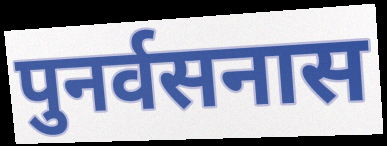
पुनर्वसनास